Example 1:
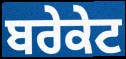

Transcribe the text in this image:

ਬਰੇਕੇਟ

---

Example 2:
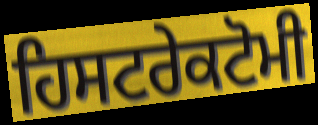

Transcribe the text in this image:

ਹਿਸਟਰੇਕਟੋਮੀ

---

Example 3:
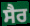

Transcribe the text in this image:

ਸੈਰ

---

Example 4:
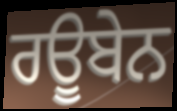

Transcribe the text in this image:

ਰਊਬੇਨ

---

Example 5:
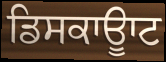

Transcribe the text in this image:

ਡਿਸਕਾਊਾਟ